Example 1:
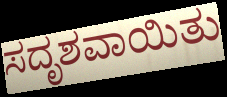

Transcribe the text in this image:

ಸದೃಶವಾಯಿತು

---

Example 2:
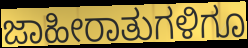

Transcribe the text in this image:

ಜಾಹೀರಾತುಗಳಿಗೂ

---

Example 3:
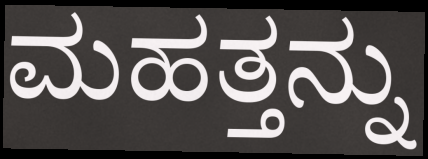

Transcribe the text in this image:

ಮಹತ್ತನ್ನು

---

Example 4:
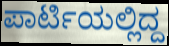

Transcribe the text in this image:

ಪಾರ್ಟಿಯಲ್ಲಿದ್ದ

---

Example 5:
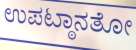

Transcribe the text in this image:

ಉಪಟ್ಠಾನತೋ